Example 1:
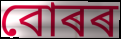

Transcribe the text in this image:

বোৰৰ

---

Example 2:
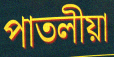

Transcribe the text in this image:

পাতলীয়া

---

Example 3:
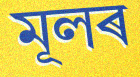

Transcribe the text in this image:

মূলৰ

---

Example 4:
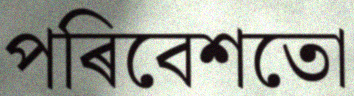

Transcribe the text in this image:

পৰিবেশতো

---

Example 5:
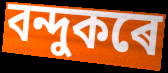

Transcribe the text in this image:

বন্দুকৰে